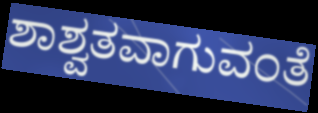
ಶಾಶ್ವತವಾಗುವಂತೆ